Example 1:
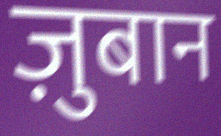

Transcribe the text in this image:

ज़ुबान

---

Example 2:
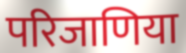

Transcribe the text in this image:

परिजाणिया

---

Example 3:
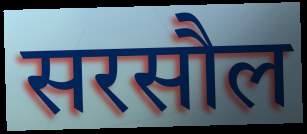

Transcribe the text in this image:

सरसौल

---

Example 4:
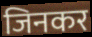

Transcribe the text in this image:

जिनकर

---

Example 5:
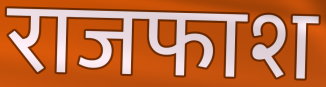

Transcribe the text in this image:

राजफाश